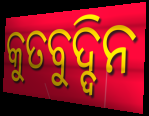
କୁତବୁଦ୍ଦିନ